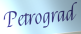
Petrograd